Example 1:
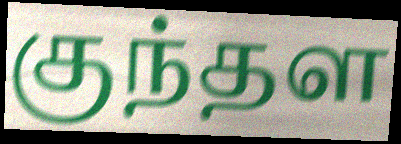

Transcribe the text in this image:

குந்தள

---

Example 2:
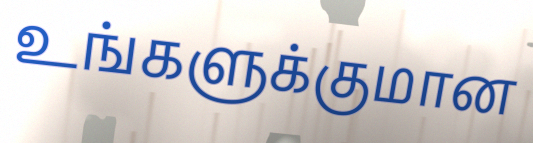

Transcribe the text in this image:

உங்களுக்குமான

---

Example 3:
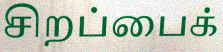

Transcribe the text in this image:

சிறப்பைக்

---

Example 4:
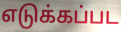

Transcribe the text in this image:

எடுக்கப்பட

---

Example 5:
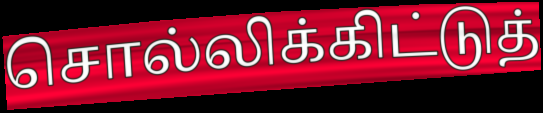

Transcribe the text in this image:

சொல்லிக்கிட்டுத்